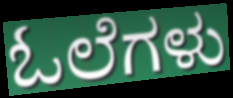
ಓಲೆಗಳು